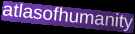
atlasofhumanity